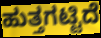
ಹುತ್ತಗಟ್ಟಿದೆ